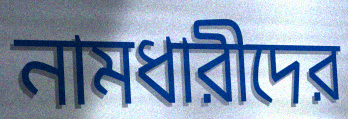
নামধারীদের